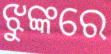
ଝୁଙ୍କରେ